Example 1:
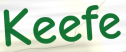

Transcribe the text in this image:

Keefe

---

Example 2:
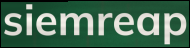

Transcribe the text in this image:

siemreap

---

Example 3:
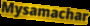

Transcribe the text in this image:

Mysamachar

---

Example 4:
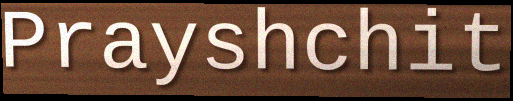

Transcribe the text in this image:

Prayshchit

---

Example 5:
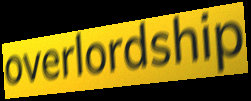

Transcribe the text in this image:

overlordship